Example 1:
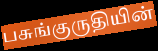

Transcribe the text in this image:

பசுங்குருதியின்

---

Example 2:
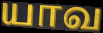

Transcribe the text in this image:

யாவ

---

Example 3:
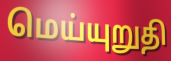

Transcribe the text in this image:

மெய்யுறுதி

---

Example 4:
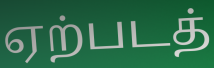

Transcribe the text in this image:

ஏற்படத்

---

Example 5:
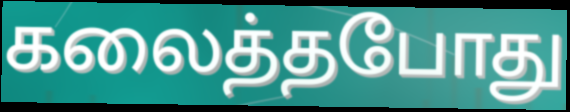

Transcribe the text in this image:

கலைத்தபோது